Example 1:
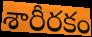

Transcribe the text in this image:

శారీరకం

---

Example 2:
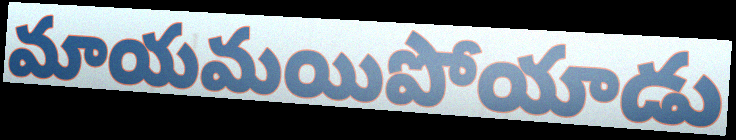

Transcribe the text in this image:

మాయమయిపోయాడు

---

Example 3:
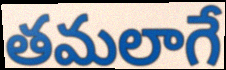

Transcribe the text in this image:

తమలాగే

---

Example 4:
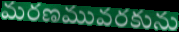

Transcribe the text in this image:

మరణమువరకును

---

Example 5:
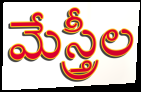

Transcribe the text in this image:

మేస్త్రీల